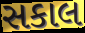
સકાલ